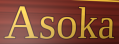
Asoka